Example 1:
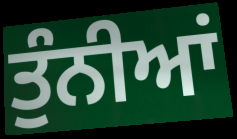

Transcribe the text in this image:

ਤੁੰਨੀਆਂ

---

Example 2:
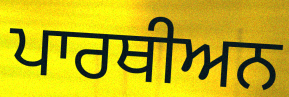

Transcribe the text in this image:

ਪਾਰਥੀਅਨ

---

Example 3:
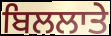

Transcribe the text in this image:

ਬਿਲਲਾਤੇ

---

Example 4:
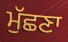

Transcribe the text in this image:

ਮੁੱਛਣਾ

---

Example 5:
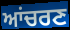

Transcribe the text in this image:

ਆਂਚਰਣ